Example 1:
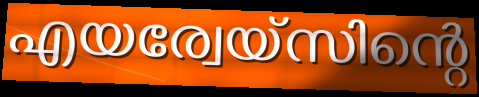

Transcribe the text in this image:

എയര്വേയ്സിന്റെ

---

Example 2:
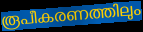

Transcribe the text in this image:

രൂപീകരണത്തിലും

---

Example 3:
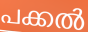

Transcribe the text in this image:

പക്കൽ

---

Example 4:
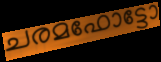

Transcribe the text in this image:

ചരമഫോട്ടോ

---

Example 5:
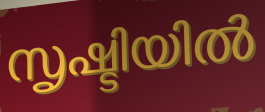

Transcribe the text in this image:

സൃഷ്ടിയിൽ